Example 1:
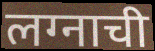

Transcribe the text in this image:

लग्नाची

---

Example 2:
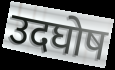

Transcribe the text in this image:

उदघोष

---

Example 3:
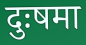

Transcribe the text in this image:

दुःषमा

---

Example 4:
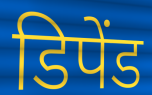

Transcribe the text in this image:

डिपेंड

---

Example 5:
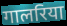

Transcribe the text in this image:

गालरिया